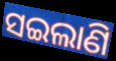
ସଇଲାଣି